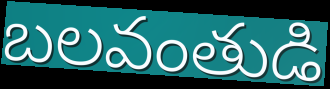
బలవంతుడి